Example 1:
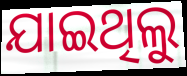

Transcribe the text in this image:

ଯାଇଥିଲୁ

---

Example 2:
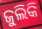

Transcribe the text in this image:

ଜୁଲିକି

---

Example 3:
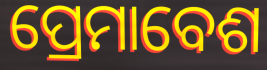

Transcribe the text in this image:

ପ୍ରେମାବେଶ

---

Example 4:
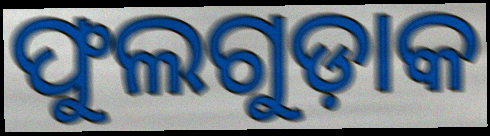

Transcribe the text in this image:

ଫୁଲଗୁଡ଼ାକ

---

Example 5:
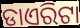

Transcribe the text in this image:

ଡାଏରିଟା